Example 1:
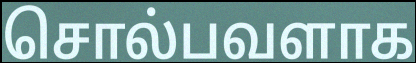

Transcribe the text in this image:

சொல்பவளாக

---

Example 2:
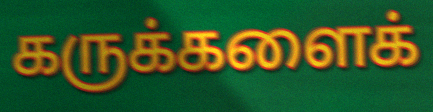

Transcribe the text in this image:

கருக்களைக்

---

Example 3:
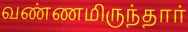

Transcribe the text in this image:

வண்ணமிருந்தார்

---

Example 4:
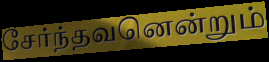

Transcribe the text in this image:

சேர்ந்தவனென்றும்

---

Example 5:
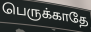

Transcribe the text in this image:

பெருக்காதே